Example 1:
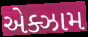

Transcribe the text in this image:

એક્ઝામ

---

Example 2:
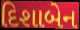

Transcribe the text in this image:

દિશાબેન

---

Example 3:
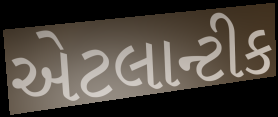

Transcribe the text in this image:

એટલાન્ટીક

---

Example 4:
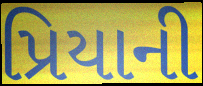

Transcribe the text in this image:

પ્રિયાની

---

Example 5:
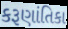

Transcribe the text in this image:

કરૂણાંતિકા